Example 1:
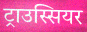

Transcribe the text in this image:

ट्राउस्सियर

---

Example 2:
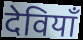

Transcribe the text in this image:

देवियाँ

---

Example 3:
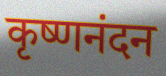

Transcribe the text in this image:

कृष्णनंदन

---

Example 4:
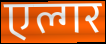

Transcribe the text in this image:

एल्गर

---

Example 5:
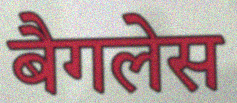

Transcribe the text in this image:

बैगलेस